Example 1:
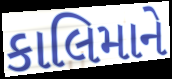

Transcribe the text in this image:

કાલિમાને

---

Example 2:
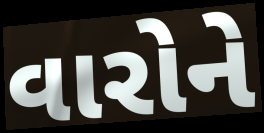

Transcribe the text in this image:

વારોને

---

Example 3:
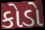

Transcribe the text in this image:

કોડો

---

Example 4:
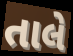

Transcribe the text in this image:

તાલે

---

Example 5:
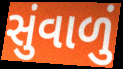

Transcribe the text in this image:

સુંવાળું